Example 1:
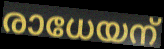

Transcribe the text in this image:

രാധേയന്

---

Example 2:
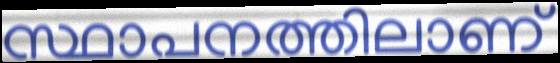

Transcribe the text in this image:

സ്ഥാപനത്തിലാണ്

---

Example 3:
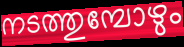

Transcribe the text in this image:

നടത്തുമ്പോഴും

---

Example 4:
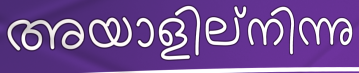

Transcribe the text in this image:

അയാളില്നിന്നു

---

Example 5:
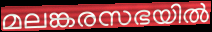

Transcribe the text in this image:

മലങ്കരസഭയിൽ